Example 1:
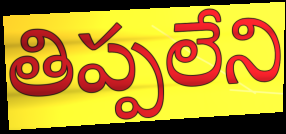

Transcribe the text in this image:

తిప్పలేని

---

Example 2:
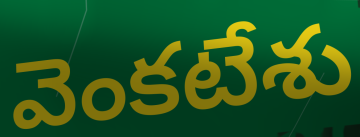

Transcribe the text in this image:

వెంకటేశు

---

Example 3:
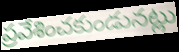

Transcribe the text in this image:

ప్రవేశించకుండునట్లు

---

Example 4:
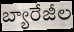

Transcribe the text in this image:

బ్యారేజీల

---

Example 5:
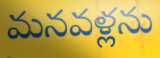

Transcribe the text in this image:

మనవళ్లను